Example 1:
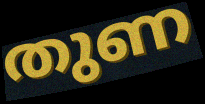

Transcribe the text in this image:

തുണ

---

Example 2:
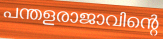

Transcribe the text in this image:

പന്തളരാജാവിന്റെ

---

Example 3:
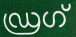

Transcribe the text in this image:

ഡ്രഗ്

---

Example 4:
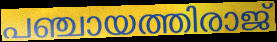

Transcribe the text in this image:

പഞ്ചായത്തിരാജ്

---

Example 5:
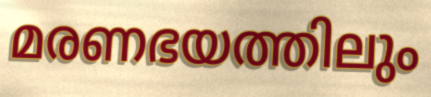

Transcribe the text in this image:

മരണഭയത്തിലും